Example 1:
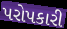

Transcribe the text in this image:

પરોપકારી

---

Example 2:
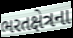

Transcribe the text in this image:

ભરતક્ષેત્રના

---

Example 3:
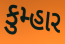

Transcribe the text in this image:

કુમ્હાર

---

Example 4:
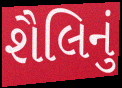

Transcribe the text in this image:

શૈલિનું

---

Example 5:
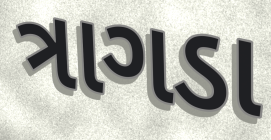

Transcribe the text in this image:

ત્રાગડા